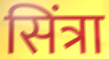
सिंत्रा